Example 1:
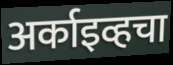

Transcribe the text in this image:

अर्काइव्हचा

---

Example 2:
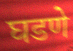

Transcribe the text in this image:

घडणे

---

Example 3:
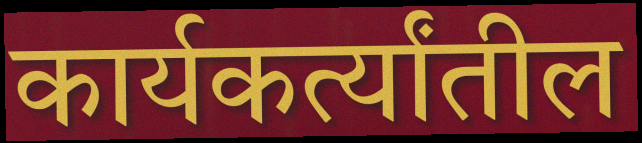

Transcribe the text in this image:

कार्यकर्त्यांतील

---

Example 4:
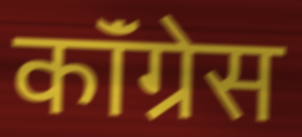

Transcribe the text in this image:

कॉंग्रेस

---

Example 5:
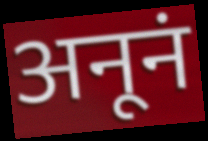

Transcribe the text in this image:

अनूनं